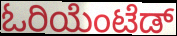
ಓರಿಯೆಂಟೆಡ್